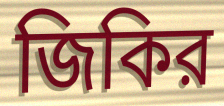
জিকির